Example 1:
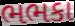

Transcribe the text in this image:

ભભકા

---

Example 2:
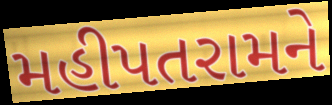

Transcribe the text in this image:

મહીપતરામને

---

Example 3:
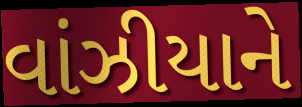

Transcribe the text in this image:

વાંઝીયાને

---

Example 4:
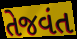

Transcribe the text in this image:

તેજવંત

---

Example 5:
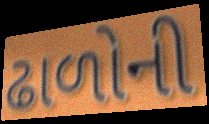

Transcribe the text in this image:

ઢાળોની